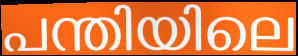
പന്തിയിലെ